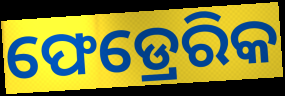
ଫେଡ୍ରେରିକ